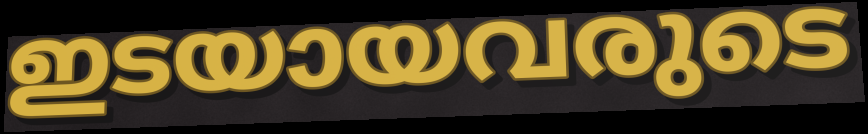
ഇടയായവരുടെ